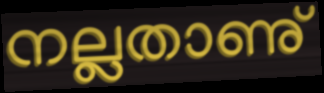
നല്ലതാണു്